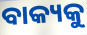
ବାକ୍ୟକୁ